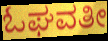
ಓಘವತೀ